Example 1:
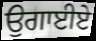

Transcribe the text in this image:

ਉਗਾਈਏ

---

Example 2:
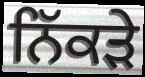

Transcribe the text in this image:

ਨਿੱਕੜੇ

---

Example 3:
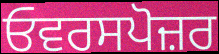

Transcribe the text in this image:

ਓਵਰਸਪੋਜ਼ਰ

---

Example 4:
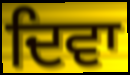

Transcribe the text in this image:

ਦਿਵਾ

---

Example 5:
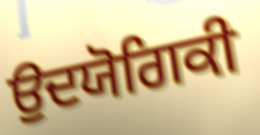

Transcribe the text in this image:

ਉਦਯੋਗਿਕੀ